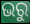
ଭରୁ